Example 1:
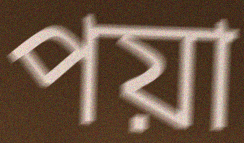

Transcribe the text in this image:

পয়া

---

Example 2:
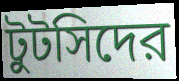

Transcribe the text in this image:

টুটসিদের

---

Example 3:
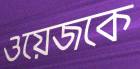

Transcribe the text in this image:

ওয়েজকে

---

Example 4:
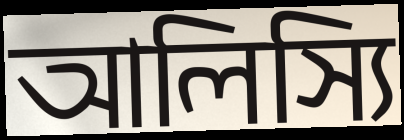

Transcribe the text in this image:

আলিস্যি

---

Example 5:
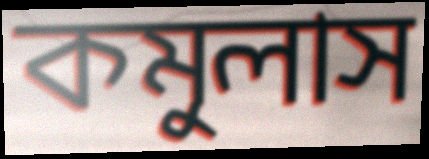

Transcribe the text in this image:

কমুলাস